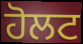
ਹੋਲਟ